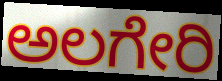
ಅಲಗೇರಿ